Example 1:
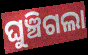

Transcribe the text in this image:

ଘୁଞ୍ଚିଗଲା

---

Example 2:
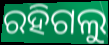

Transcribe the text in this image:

ରହିଗଲୁ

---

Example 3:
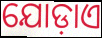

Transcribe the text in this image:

ଯୋଡ଼ାଏ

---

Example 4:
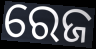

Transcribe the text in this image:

ରେଜ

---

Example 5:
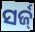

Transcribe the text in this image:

ସର୍ଜ୍